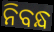
ନିବନ୍ଧ